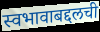
स्वभावाबद्दलची